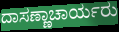
ದಾಸಣ್ಣಾಚಾರ್ಯರು